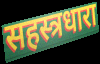
सहस्त्रधारा